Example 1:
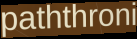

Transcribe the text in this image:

paththroni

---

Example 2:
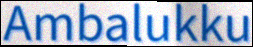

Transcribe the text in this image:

Ambalukku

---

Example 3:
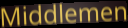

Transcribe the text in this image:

Middlemen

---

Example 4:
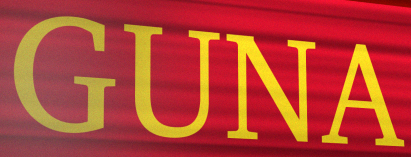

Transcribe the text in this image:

GUNA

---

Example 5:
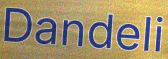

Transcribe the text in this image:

Dandeli